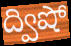
ద్విషో